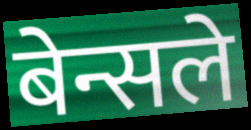
बेन्सले